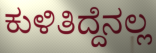
ಕುಳಿತಿದ್ದೆನಲ್ಲ